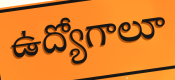
ఉద్యోగాలూ